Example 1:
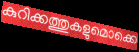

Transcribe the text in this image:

കുറിക്കത്തുകളുമൊക്കെ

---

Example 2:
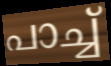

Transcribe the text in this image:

പാച്ച്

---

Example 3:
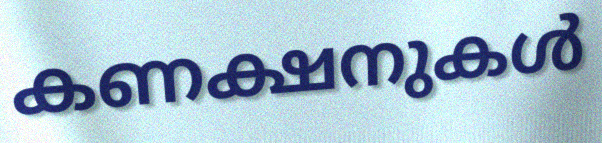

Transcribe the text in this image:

കണക്ഷനുകൾ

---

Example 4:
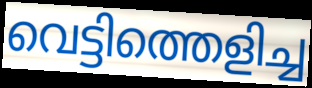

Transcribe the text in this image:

വെട്ടിത്തെളിച്ച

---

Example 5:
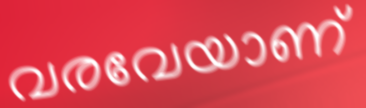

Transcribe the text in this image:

വരവേയാണ്